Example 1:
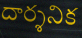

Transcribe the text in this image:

దార్శనిక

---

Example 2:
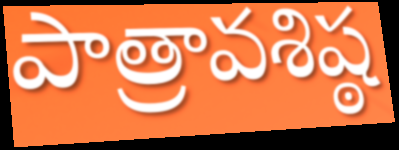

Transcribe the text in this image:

పాత్రావశిష్ఠ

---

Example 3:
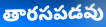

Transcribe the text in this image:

తారసపడవు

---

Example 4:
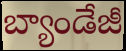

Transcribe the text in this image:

బ్యాండేజీ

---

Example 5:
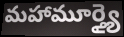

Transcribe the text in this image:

మహామూర్త్యై